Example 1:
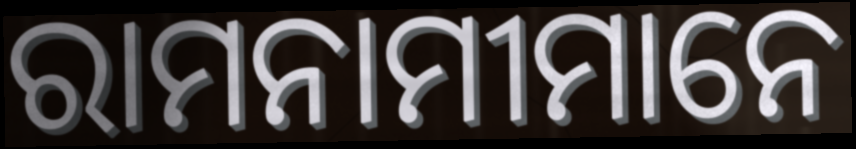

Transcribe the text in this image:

ରାମନାମୀମାନେ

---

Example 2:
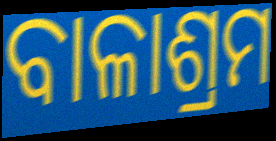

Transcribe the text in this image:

ବାଳାଶ୍ରମ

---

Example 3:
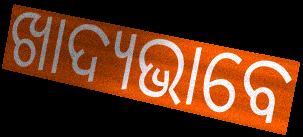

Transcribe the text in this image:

ଖାଦ୍ୟଭାବେ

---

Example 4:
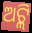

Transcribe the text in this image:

ଅଟ୍ଲି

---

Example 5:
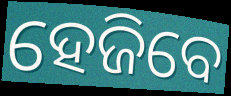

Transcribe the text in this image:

ହେଜିବେ